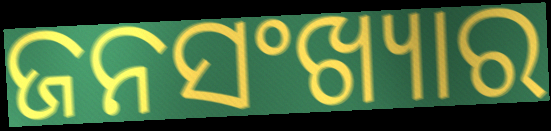
ଜନସଂଖ୍ଯାର